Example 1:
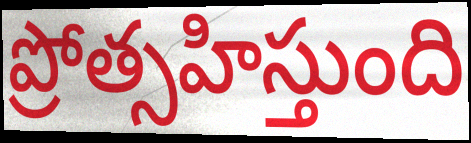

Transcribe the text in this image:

ప్రోత్సహిస్తుంది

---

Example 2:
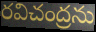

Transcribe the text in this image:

రవిచంద్రను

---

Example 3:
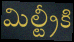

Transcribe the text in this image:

మిల్ట్రీకి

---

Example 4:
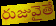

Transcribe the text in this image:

రుజువైతే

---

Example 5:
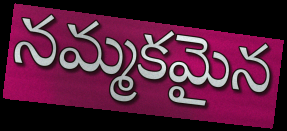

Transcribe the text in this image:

నమ్మకమైన